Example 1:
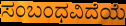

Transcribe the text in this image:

ಸಂಬಂಧವಿದೆಯೆ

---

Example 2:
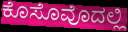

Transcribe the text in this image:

ಕೊಸೊವೊದಲ್ಲಿ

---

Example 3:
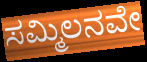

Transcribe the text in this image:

ಸಮ್ಮಿಲನವೇ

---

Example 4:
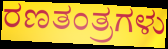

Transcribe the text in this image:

ರಣತಂತ್ರಗಳು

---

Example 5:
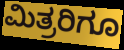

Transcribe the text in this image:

ಮಿತ್ರರಿಗೂ